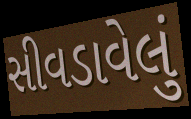
સીવડાવેલું